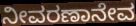
ನೀವರಣಾನೇವ